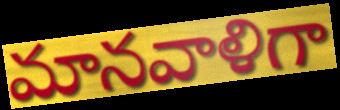
మానవాళిగా